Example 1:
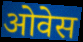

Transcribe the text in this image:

ओवेस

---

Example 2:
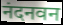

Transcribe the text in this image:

नंदनवन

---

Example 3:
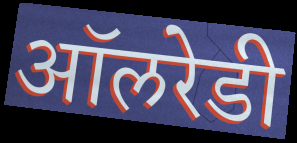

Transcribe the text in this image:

ऑलरेडी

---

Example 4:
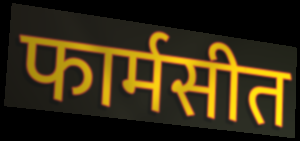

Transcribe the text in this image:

फार्मसीत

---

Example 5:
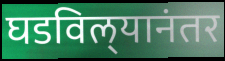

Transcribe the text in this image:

घडविल्यानंतर